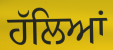
ਹੱਲਿਆਂ